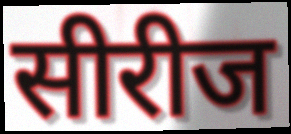
सीरीज